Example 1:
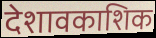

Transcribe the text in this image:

देशावकाशिक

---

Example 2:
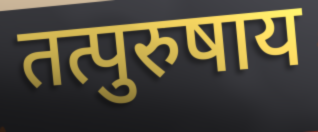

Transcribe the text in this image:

तत्पुरुषाय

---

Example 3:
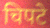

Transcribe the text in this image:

चिपटे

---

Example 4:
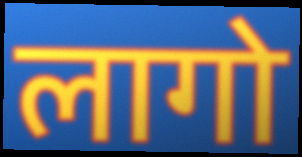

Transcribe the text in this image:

लागो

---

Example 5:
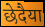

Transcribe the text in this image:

छेदैया